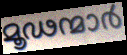
മൂഢന്മാർ